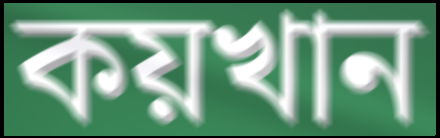
কয়খান